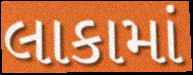
લાકામાં